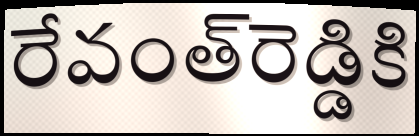
రేవంత్‌రెడ్డికి